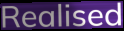
Realised